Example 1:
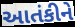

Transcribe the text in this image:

આતંકીને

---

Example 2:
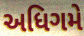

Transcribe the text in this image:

અધિગમે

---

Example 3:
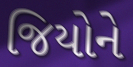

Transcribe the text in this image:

જિયોને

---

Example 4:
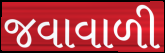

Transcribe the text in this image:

જવાવાળી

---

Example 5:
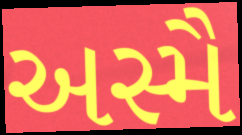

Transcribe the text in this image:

અસ્મૈ